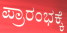
ಪ್ರಾರಂಭಕ್ಕೆ